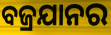
ବଜ୍ରଯାନର